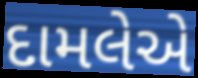
દામલેએ